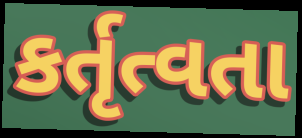
કર્તૃત્વતા